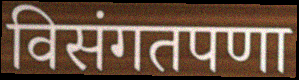
विसंगतपणा